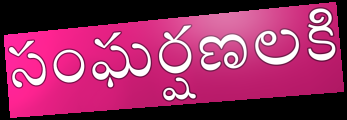
సంఘర్షణలకి